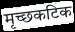
मृच्छकटिक